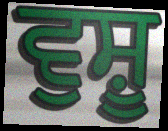
ਵੁਸ਼ੂ